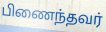
பிணைந்தவர்